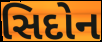
સિદોન